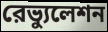
রেভ্যুলেশন